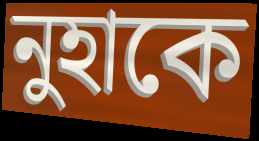
নুহাকে